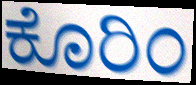
ಕೊರಿಂ